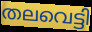
തലവെട്ടി